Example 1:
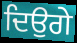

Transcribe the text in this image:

ਦਿਉਗੇ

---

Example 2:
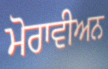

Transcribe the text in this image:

ਮੋਰਾਵੀਅਨ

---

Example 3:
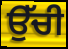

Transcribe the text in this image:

ਉੱਚੀ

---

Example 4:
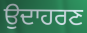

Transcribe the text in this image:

ਉਦਾਹਰਣ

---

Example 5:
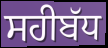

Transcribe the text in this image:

ਸਹੀਬੱਧ